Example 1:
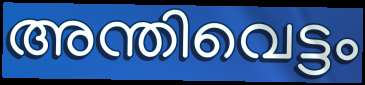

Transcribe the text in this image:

അന്തിവെട്ടം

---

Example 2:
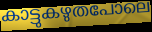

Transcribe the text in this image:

കാട്ടുകഴുതപോലെ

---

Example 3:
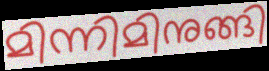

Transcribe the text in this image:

മിന്നിമിനുങ്ങി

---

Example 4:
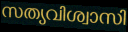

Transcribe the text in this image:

സത്യവിശ്വാസി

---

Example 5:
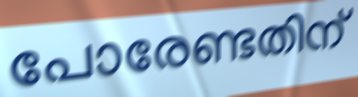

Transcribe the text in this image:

പോരേണ്ടതിന്